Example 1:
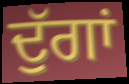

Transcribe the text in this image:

ਦੁੱਗਾਂ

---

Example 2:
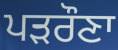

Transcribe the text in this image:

ਪੜਰੌਣਾ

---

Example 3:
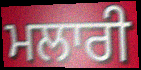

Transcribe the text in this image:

ਮਲਾਰੀ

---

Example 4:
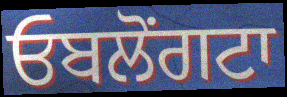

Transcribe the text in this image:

ਓਬਲੋਂਗਟਾ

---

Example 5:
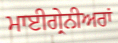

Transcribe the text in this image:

ਮਾਈਗ੍ਰੇਨੀਅਰਾਂ